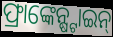
ଫ୍ରାଙ୍କେନ୍ଷ୍ଟାଇନ୍